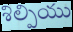
శిల్పియు